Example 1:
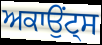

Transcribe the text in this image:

ਅਕਾਉਂਟ੍ਸ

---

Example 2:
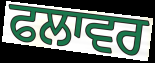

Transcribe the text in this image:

ਫਲਾਵਰ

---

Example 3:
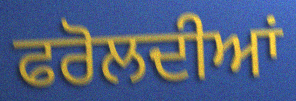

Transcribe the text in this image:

ਫਰੋਲਦੀਆਂ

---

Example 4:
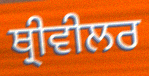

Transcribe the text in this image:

ਥ੍ਰੀਵੀਲਰ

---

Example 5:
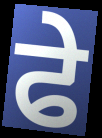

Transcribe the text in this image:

ਫੇ